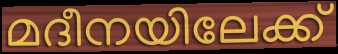
മദീനയിലേക്ക്